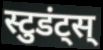
स्टुडंट्स्